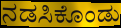
ನಡಸಿಕೊಂಡು